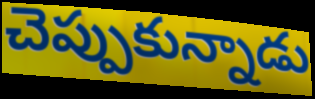
చెప్పుకున్నాడు